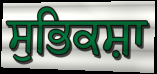
ਸੁਭਿਕਸ਼ਾ